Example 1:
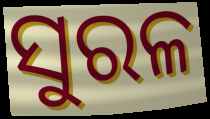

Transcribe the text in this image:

ସୁରଳ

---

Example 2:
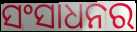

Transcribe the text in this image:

ସଂସାଧନର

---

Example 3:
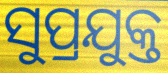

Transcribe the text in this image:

ସୁପ୍ରଯୁକ୍ତ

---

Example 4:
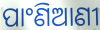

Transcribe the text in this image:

ପାଂଣିଆଣୀ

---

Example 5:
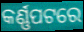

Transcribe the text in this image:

କର୍ଣ୍ଣପଟରେ